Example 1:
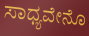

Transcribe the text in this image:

ಸಾಧ್ಯವೇನೊ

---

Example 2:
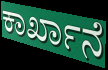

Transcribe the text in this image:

ಕಾರ್ಖಾನೆ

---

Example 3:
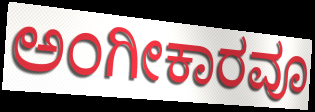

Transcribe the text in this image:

ಅಂಗೀಕಾರವೂ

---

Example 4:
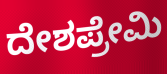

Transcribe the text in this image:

ದೇಶಪ್ರೇಮಿ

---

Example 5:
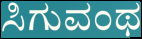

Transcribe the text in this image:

ಸಿಗುವಂಥ